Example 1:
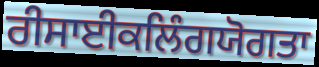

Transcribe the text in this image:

ਰੀਸਾਈਕਲਿੰਗਯੋਗਤਾ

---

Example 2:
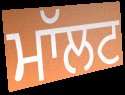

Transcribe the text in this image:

ਮਾੱਲਟ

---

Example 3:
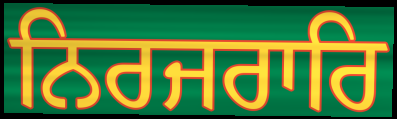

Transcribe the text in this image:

ਨਿਰਜਰਾਰਿ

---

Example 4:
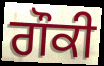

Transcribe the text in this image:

ਗੌਕੀ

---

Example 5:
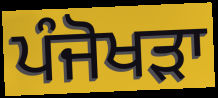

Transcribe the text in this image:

ਪੰਜੋਖੜਾ